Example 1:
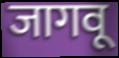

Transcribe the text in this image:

जागवू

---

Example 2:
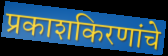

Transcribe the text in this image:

प्रकाशकिरणांचे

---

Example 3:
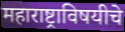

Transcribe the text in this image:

महाराष्ट्राविषयीचे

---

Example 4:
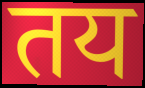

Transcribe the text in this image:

तय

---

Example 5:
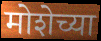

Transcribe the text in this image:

मोशेच्या